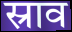
स्राव